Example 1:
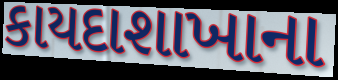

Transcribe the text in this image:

કાયદાશાખાના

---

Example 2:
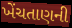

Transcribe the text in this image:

ખેંચતાણની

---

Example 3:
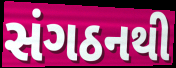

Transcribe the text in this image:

સંગઠનથી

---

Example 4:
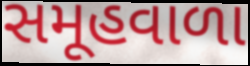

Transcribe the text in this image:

સમૂહવાળા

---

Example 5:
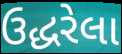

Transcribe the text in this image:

ઉદ્ધરેલા